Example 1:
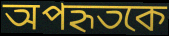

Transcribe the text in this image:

অপহৃতকে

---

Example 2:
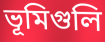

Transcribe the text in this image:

ভূমিগুলি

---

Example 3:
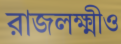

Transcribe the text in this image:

রাজলক্ষ্মীও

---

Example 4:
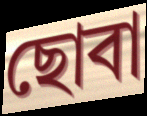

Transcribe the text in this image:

ছোবা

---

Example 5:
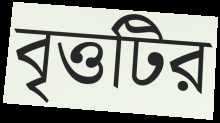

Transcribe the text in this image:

বৃত্তটির